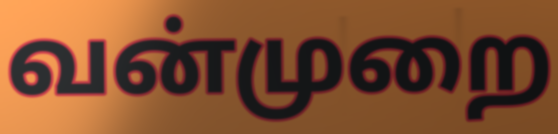
வன்முறை